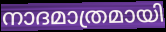
നാദമാത്രമായി